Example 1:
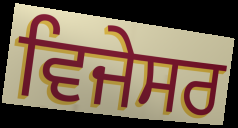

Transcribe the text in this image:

ਵਿਜੇਸਰ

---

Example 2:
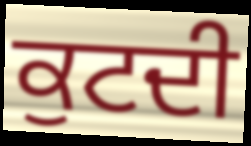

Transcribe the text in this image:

ਕੁਟਦੀ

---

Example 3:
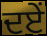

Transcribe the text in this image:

ਦਏਂ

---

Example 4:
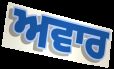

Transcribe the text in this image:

ਅਵਾਰ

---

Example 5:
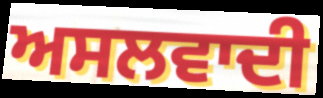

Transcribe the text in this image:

ਅਸਲਵਾਦੀ